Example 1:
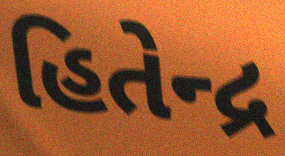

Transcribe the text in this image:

હિતેન્દ્ર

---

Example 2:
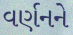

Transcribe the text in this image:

વર્ણનને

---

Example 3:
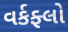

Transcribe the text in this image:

વર્કફ્લો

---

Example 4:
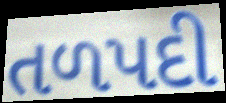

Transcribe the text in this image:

તળપદી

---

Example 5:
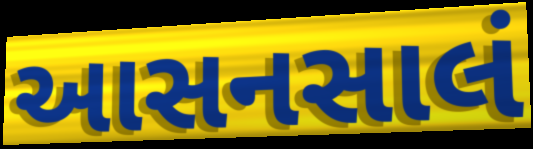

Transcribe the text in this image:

આસનસાલં